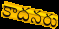
కాదనరు